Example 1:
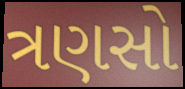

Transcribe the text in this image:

ત્રણસો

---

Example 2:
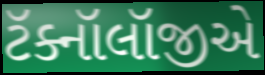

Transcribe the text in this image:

ટૅક્નૉલૉજીએ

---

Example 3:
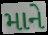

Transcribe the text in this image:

માને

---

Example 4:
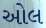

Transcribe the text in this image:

ઓલ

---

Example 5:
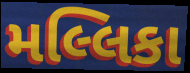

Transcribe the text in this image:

મલ્લિકા